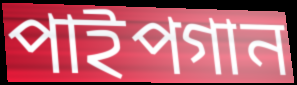
পাইপগান